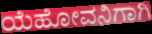
ಯೆಹೋವನಿಗಾಗಿ